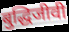
बुद्धिजीवी